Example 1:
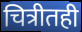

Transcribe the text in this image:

चित्रीतही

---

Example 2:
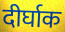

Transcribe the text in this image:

दीर्घाक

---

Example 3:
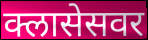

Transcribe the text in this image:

क्लासेसवर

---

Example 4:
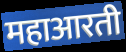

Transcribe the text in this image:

महाआरती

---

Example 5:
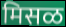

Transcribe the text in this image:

मिसळ